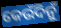
କେଉଁଦିନୁଁ